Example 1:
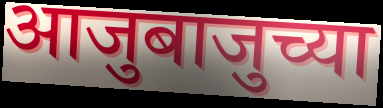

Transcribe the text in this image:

आजुबाजुच्या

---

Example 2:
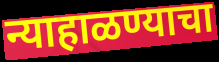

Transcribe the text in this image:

न्याहाळण्याचा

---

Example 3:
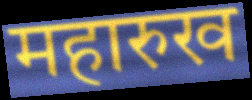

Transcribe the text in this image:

महारुख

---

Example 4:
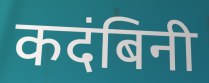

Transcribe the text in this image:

कदंबिनी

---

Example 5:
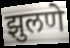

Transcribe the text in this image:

झुलणे